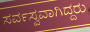
ಸರ್ವಸ್ವವಾಗಿದ್ದರು